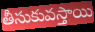
తీసుకువస్తాయి